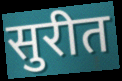
सुरीत